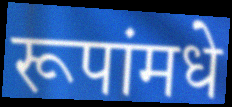
रूपांमधे